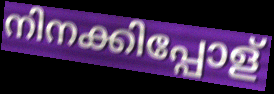
നിനക്കിപ്പോള്